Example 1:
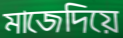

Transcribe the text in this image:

মাজেদিয়ে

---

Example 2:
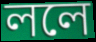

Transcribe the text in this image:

ললে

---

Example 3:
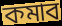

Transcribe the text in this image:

কমাব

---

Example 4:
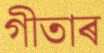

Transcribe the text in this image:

গীতাৰ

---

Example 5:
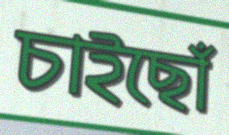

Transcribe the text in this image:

চাইছোঁ